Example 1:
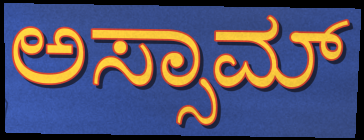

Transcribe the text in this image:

ಅಸ್ಸಾಮ್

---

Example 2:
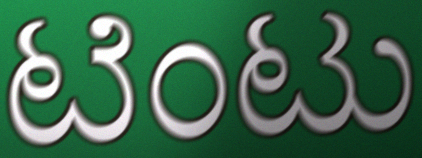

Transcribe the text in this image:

ಟೆಂಟು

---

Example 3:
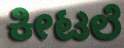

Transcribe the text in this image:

ಕೀಟಲೆ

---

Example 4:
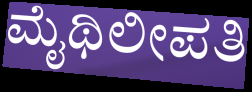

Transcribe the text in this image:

ಮೈಥಿಲೀಪತಿ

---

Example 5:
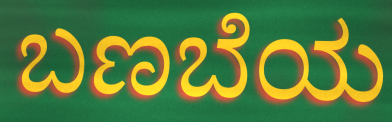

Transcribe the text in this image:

ಬಣಬೆಯ